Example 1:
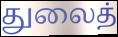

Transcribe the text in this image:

துலைத்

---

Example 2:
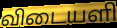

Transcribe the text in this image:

விடையளி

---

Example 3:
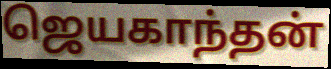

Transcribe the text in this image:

ஜெயகாந்தன்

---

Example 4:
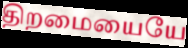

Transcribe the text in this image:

திறமையையே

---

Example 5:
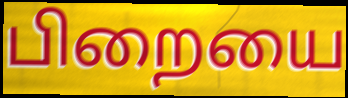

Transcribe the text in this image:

பிறையை